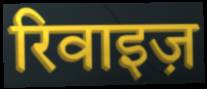
रिवाइज़